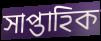
সাপ্তাহিক